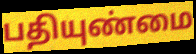
பதியுண்மை